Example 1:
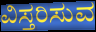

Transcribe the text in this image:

ವಿಸ್ತರಿಸುವ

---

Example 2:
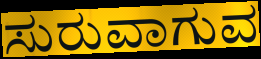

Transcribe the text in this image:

ಸುರುವಾಗುವ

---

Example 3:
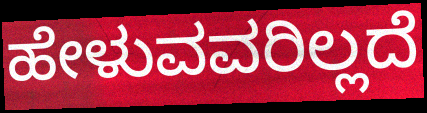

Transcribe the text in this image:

ಹೇಳುವವರಿಲ್ಲದೆ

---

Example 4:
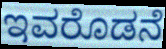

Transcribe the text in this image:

ಇವರೊಡನೆ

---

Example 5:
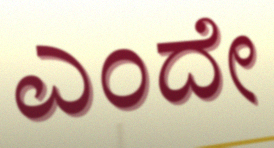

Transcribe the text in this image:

ಎಂದೇ